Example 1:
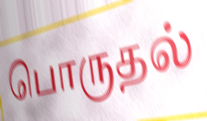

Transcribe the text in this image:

பொருதல்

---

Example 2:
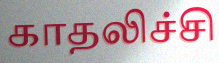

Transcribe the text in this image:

காதலிச்சி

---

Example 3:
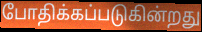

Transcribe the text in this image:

போதிக்கப்படுகின்றது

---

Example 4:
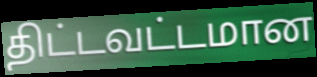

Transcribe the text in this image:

திட்டவட்டமான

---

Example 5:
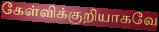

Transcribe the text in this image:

கேள்விக்குறியாகவே